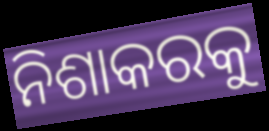
ନିଶାକରକୁ